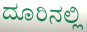
ದೂರಿನಲ್ಲಿ